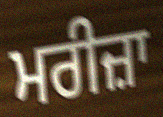
ਮਰੀਜ਼ਾ